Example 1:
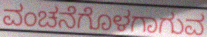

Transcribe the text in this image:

ವಂಚನೆಗೊಳಗಾಗುವ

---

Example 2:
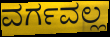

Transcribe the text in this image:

ವರ್ಗವಲ್ಲ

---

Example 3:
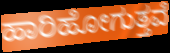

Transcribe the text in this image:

ಹಾರಿಹೋಗುತ್ತವೆ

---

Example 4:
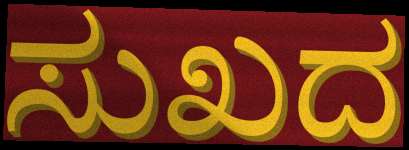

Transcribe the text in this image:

ಸುಖದ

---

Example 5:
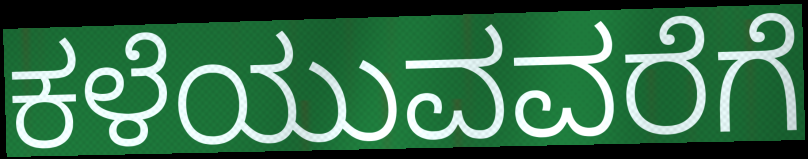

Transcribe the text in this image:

ಕಳೆಯುವವರೆಗೆ